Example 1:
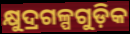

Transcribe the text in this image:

କ୍ଷୁଦ୍ରଗଳ୍ପଗୁଡ଼ିକ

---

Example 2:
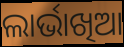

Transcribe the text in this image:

ଲାର୍ଭାଖିଆ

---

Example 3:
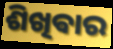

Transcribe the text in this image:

ଶିଖିଵାର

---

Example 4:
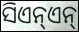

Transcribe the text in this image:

ସିଏନ୍ଏନ୍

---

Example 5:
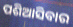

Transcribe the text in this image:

ପଶିଆସିବାର